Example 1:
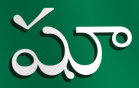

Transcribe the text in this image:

షూ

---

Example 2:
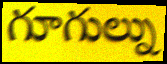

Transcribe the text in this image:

గూగుల్ను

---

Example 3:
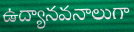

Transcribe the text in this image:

ఉద్యానవనాలుగా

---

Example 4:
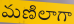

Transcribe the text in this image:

మణిలాగా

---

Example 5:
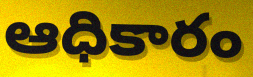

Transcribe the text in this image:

ఆధికారం